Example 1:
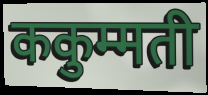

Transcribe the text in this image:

ककुम्मती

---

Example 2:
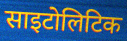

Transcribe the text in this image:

साइटोलिटिक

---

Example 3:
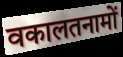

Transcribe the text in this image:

वकालतनामों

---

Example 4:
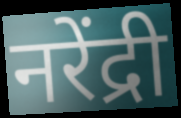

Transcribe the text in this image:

नरेंद्री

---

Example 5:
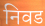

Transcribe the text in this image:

निवड